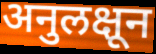
अनुलक्षून